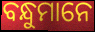
ବନ୍ଧୁମାନେ